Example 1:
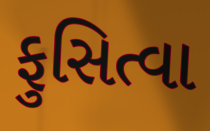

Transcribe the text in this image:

ફુસિત્વા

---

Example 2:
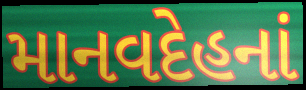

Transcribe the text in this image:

માનવદેહનાં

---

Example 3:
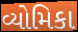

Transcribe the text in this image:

વ્યોમિકા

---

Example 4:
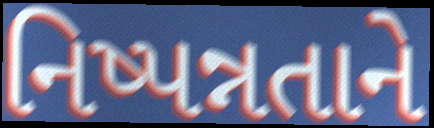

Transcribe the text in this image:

નિષ્પન્નતાને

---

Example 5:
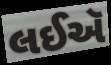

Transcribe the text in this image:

લઈઍ